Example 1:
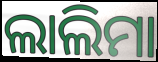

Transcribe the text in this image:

ଲାଲିମା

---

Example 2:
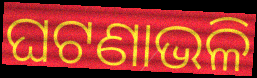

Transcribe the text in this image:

ଘଟଣାଭଳି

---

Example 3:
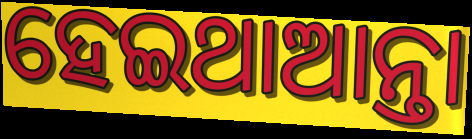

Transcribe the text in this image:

ହେଇଥାଆନ୍ତା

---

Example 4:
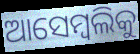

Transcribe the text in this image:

ଆସେମ୍ବଲିକୁ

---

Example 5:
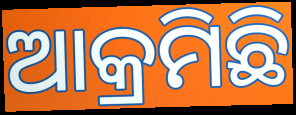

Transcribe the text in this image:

ଆକ୍ରମିଛି